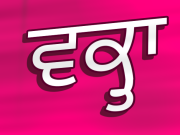
ਵਕ੍ਤਾ